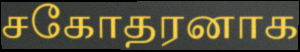
சகோதரனாக